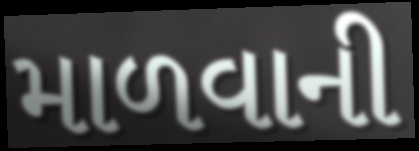
માળવાની